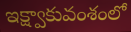
ఇక్ష్వాకువంశంలో